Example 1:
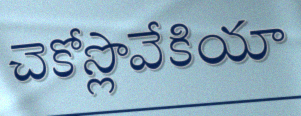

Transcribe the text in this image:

చెకోస్లొవేకియా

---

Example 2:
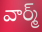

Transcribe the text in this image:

వార్మ్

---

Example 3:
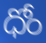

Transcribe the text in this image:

ధోం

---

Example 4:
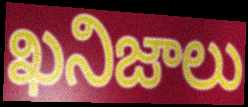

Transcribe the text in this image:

ఖనిజాలు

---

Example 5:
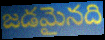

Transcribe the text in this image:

జడమైనది